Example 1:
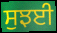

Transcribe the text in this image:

ਸੁਝਈ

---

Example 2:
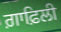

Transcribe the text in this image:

ਗ਼ਾਫ਼ਿਲੀ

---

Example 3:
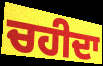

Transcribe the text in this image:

ਚਹੀਦਾ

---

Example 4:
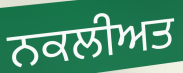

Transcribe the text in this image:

ਨਕਲੀਅਤ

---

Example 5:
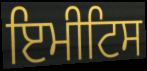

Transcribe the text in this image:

ਇਮੀਟਿਸ